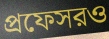
প্রফেসরও